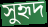
সুহৃদ